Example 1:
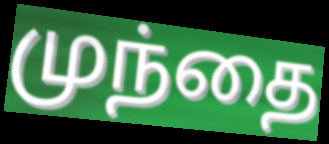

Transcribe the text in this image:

முந்தை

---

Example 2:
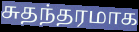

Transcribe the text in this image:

சுதந்தரமாக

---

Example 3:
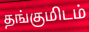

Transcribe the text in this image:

தங்குமிடம்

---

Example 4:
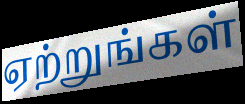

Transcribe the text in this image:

ஏற்றுங்கள்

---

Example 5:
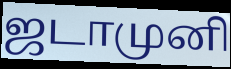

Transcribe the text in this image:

ஜடாமுனி